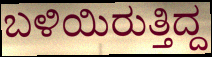
ಬಳಿಯಿರುತ್ತಿದ್ದ